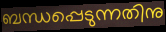
ബന്ധപ്പെടുന്നതിനു